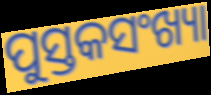
ପୁସ୍ତକସଂଖ୍ୟା